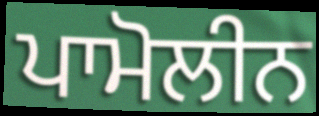
ਪਾਮੋਲੀਨ